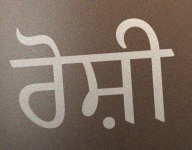
ਰੋਸ਼ੀ